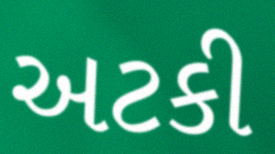
અટકી